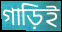
গাড়িই